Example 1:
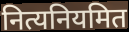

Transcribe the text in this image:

नित्यनियमित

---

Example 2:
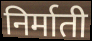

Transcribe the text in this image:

निर्माती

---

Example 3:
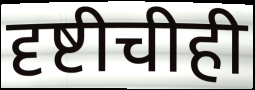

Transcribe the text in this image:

दृष्टीचीही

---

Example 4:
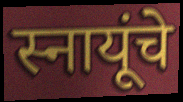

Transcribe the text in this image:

स्नायूंचे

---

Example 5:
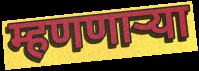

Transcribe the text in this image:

म्हणणार्‍या